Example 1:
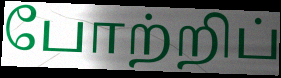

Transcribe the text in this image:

போற்றிப்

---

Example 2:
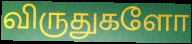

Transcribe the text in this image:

விருதுகளோ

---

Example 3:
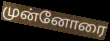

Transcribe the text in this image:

முன்னோரை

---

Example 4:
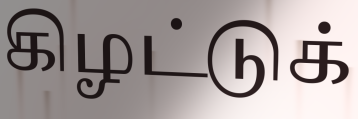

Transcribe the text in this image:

கிழட்டுக்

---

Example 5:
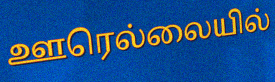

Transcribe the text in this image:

ஊரெல்லையில்